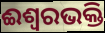
ଈଶ୍ୱରଭକ୍ତି